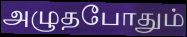
அழுதபோதும்